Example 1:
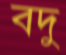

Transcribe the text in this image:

বদু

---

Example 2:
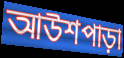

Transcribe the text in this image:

আউশপাড়া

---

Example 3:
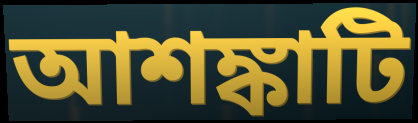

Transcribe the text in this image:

আশঙ্কাটি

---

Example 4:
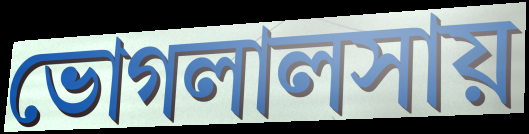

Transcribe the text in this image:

ভোগলালসায়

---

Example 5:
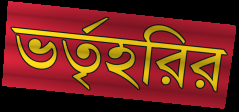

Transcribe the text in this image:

ভর্তৃহরির